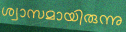
ശ്വാസമായിരുന്നു